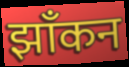
झाँकन